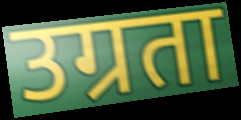
उग्रता